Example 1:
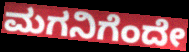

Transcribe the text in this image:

ಮಗನಿಗೆಂದೇ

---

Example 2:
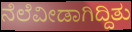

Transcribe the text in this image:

ನೆಲೆವೀಡಾಗಿದ್ದಿತು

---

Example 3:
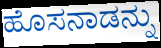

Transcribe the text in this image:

ಹೊಸನಾಡನ್ನು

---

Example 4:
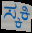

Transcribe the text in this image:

ಸ್ಕಕಿ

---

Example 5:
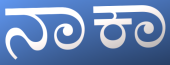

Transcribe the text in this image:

ನಾಕಾ